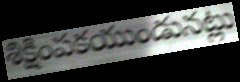
శిక్షింపకయుండునట్లు